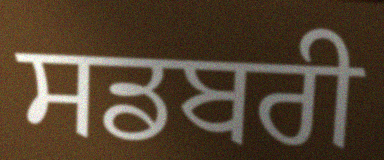
ਸਡਬਰੀ